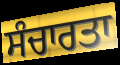
ਸੰਚਾਰਤਾ